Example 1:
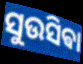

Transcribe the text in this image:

ସୁଉସିଵା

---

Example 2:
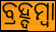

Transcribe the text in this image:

ବ୍ରହ୍ଦମ୍ବା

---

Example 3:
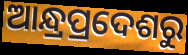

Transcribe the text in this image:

ଆନ୍ଧ୍ରପ୍ରଦେଶରୁ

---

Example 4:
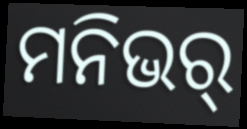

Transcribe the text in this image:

ମନିଭର୍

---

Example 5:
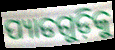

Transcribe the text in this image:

ପ୍ୟାଡଗୁଡ଼ିକୁ